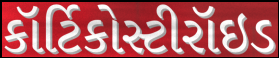
કૉર્ટિકોસ્ટીરૉઇડ